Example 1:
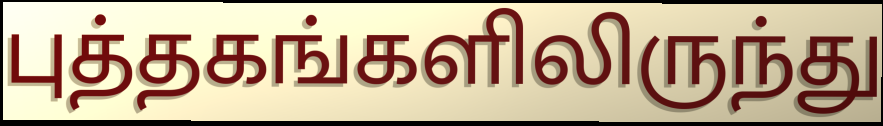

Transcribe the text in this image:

புத்தகங்களிலிருந்து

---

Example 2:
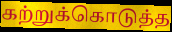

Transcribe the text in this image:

கற்றுக்கொடுத்த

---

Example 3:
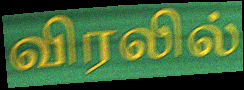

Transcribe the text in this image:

விரலில்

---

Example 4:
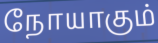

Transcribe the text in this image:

நோயாகும்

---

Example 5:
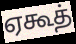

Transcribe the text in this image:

ஏகூத்